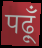
पढ़ूँ